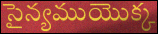
సైన్యముయొక్క